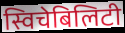
स्विचेबिलिटी